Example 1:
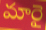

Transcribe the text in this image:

మారై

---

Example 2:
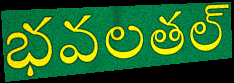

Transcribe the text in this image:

భవలతల్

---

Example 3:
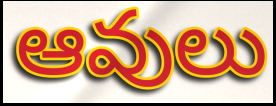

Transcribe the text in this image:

ఆవులు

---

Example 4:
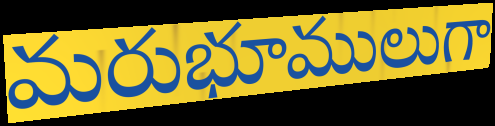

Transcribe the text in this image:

మరుభూములుగా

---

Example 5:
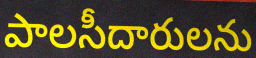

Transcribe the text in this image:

పాలసీదారులను